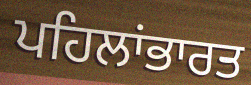
ਪਹਿਲਾਂਭਾਰਤ